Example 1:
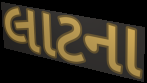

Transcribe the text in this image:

લાટના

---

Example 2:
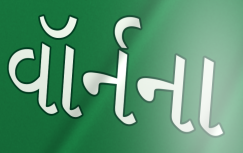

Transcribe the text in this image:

વૉર્નના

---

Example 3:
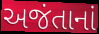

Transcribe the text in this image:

અજંતાનાં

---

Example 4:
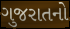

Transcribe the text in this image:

ગુજરાતનો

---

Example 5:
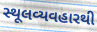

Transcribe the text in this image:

સ્થૂલવ્યવહારથી